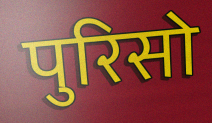
पुरिसो